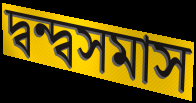
দ্বন্দ্বসমাস